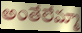
అంతేలేమ్మా